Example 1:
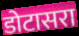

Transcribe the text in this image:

डोटासरा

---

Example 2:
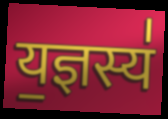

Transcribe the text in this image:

य॒ज्ञस्य॑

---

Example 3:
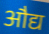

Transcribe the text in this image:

औद्य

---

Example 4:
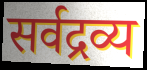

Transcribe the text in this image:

सर्वद्रव्य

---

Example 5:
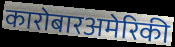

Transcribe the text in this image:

कारोबारअमेरिकी